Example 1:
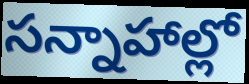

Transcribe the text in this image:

సన్నాహాల్లో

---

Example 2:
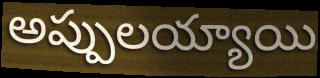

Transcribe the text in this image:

అప్పులయ్యాయి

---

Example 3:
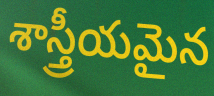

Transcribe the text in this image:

శాస్త్రీయమైన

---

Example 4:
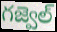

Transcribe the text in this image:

గజ్వెల్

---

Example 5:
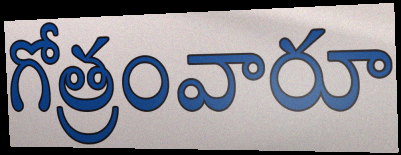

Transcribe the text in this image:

గోత్రంవారూ